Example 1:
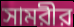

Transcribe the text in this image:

সামরীর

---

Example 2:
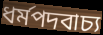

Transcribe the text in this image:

ধর্মপদবাচ্য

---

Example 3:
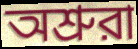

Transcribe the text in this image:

অশ্রুরা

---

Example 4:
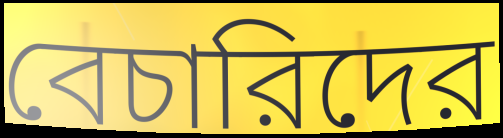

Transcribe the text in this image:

বেচারিদের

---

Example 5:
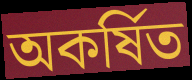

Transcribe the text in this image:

অকর্ষিত